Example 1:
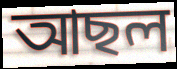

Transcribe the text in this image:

আছল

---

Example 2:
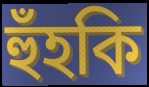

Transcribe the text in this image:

হুঁহকি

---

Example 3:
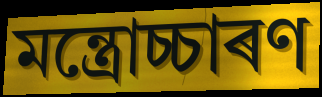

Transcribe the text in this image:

মন্ত্ৰোচ্চাৰণ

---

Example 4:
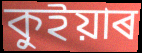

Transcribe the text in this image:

কুইয়াৰ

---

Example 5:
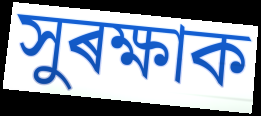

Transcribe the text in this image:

সুৰক্ষাক